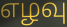
எழவு